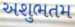
અશુભતમ